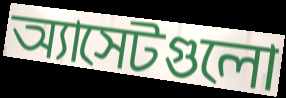
অ্যাসেটগুলো